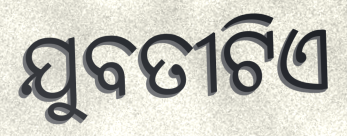
ଯୁବତୀଟିଏ